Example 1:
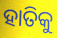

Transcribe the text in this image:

ହାତିକୁ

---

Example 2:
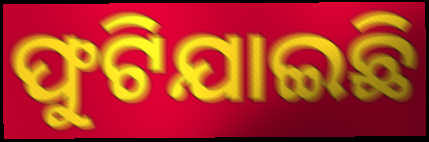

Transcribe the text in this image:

ଫୁଟିଯାଇଛି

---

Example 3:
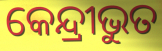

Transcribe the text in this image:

କେନ୍ଦ୍ରୀଭୁତ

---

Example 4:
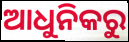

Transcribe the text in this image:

ଆଧୁନିକରୁ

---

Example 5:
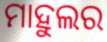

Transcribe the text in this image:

ମାହୁଲର